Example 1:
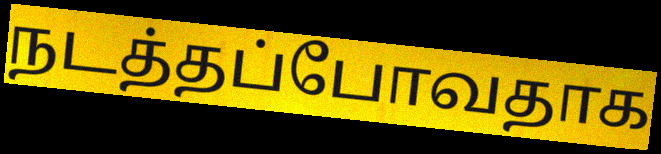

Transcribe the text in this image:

நடத்தப்போவதாக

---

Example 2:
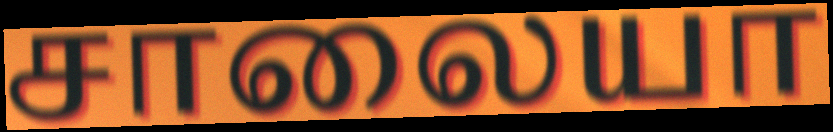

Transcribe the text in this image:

சாலையா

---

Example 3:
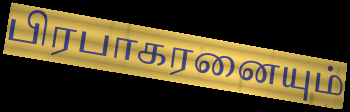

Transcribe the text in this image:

பிரபாகரனையும்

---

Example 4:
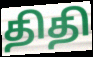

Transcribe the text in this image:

திதி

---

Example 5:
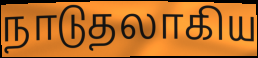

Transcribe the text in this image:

நாடுதலாகிய